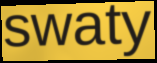
swaty